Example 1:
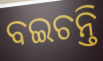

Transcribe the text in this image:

ବଇଚନ୍ତି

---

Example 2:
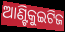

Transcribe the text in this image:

ଆଣ୍ଟିକୁଇଟିଜ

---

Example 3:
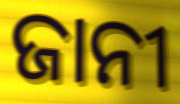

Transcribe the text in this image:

ଜାନୀ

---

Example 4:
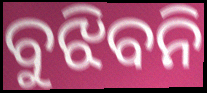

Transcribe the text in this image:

ବୁଝିବନି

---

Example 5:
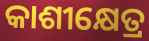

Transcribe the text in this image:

କାଶୀକ୍ଷେତ୍ର